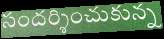
సందర్శించుకున్న